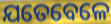
ଯତେବେଳେ